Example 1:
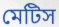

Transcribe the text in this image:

মেটিস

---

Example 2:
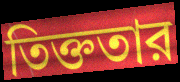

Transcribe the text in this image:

তিক্ততার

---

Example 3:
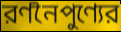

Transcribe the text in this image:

রণনৈপুণ্যের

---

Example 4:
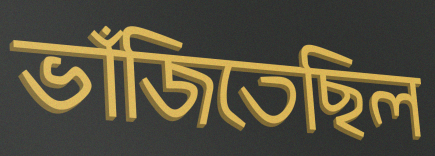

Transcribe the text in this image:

ভাঁজিতেছিল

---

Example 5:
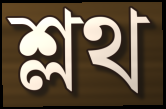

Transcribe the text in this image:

শ্লথ